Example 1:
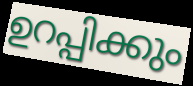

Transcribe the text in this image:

ഉറപ്പിക്കും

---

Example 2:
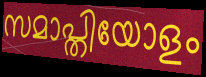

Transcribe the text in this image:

സമാപ്തിയോളം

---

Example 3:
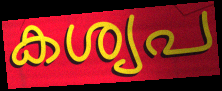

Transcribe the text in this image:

കശ്യപ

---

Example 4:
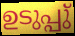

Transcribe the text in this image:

ഉടുപ്പു്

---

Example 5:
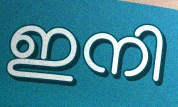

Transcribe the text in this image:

ഇനി